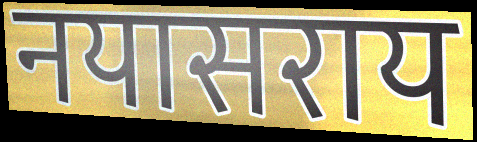
नयासराय